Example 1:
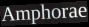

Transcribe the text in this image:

Amphorae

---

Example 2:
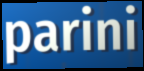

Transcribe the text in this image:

parini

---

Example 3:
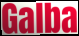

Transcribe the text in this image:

Galba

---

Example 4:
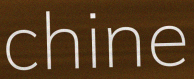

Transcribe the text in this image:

chine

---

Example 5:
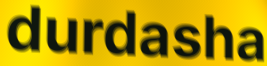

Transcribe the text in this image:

durdasha